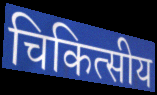
चिकित्सीय